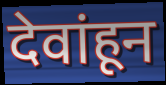
देवांहून